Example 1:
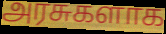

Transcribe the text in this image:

அரசுகளாக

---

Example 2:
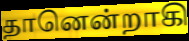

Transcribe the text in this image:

தானென்றாகி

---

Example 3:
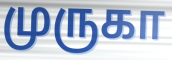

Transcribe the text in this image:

முருகா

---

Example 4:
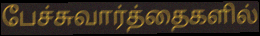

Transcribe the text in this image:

பேச்சுவார்த்தைகளில்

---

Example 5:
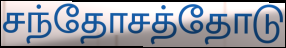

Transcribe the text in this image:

சந்தோசத்தோடு